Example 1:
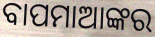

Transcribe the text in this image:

ବାପମାଆଙ୍କର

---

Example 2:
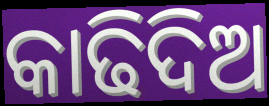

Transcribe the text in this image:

କାଢିଦିଅ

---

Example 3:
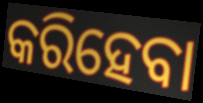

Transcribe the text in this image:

କରିହେବା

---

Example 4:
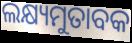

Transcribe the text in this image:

ଲକ୍ଷ୍ୟମୁତାବକ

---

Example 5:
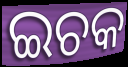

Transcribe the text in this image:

ଇଚକ